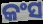
କଂସ